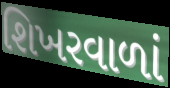
શિખરવાળાં